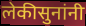
लेकीसुनांनी